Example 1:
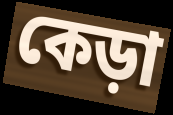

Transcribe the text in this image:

কেড়া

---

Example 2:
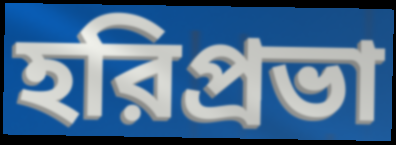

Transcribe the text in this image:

হরিপ্রভা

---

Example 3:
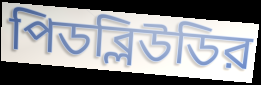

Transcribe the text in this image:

পিডব্লিউডির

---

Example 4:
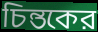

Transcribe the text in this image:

চিন্তকের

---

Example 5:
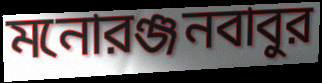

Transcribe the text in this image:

মনোরঞ্জনবাবুর